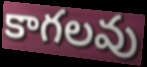
కాగలవు